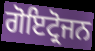
ਗੋਇਟ੍ਰੋਜਨ